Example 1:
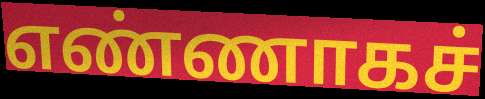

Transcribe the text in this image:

எண்ணாகச்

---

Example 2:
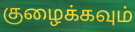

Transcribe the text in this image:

குழைக்கவும்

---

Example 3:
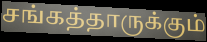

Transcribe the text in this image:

சங்கத்தாருக்கும்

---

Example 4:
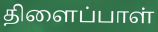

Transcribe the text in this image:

திளைப்பாள்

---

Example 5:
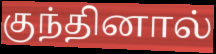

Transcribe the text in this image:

குந்தினால்